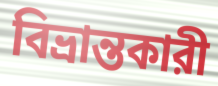
বিভ্রান্তকারী